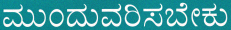
ಮುಂದುವರಿಸಬೇಕು